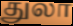
துலா